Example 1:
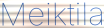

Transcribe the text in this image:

Meiktila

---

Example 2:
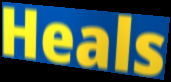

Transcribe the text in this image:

Heals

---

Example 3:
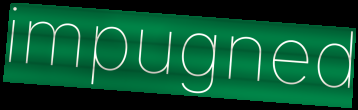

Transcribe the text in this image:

impugned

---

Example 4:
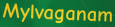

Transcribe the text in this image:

Mylvaganam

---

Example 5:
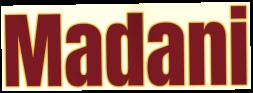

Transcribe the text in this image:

Madani